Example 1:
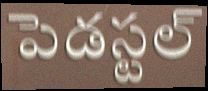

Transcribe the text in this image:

పెడస్టల్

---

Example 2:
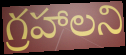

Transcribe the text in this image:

గ్రహాలని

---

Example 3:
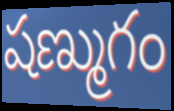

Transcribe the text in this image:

షణ్ముగం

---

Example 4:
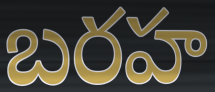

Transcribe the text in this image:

బరహ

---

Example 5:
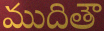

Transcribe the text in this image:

ముదితౌ